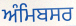
ਅੰਮਿਬਸਰ